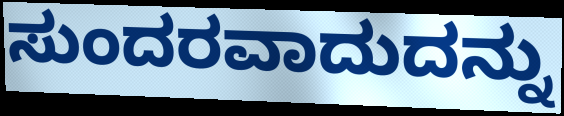
ಸುಂದರವಾದುದನ್ನು